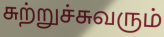
சுற்றுச்சுவரும்